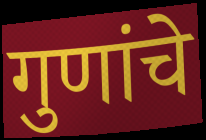
गुणांचे